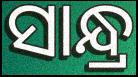
ସାନ୍ଧ୍ର